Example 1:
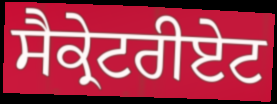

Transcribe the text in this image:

ਸੈਕ੍ਰੇਟਰੀਏਟ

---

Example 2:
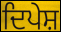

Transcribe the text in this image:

ਦਿਪੇਸ਼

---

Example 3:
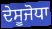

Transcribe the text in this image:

ਦੇਸੂਜੋਧਾ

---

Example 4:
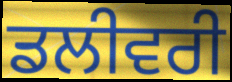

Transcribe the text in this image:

ਡਲੀਵਰੀ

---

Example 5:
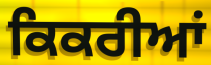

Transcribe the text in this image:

ਕਿਕਰੀਆਂ